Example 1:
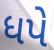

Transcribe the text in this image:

ધપે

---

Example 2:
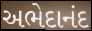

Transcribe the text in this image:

અભેદાનંદ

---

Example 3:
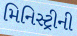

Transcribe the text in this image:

મિનિસ્ટ્રીની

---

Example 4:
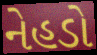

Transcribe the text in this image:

નેહડો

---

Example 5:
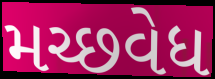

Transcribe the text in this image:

મચ્છવેધ